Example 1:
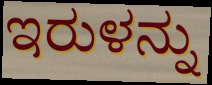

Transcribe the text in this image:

ಇರುಳನ್ನು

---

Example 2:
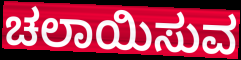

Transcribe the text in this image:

ಚಲಾಯಿಸುವ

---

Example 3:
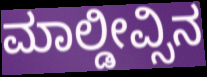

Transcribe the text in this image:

ಮಾಲ್ಡೀವ್ಸಿನ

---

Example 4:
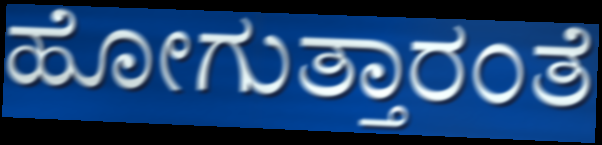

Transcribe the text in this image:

ಹೋಗುತ್ತಾರಂತೆ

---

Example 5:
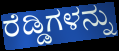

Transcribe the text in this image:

ರೆಡ್ಡಿಗಳನ್ನು